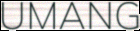
UMANG